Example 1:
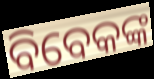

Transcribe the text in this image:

ବିବେକଙ୍କ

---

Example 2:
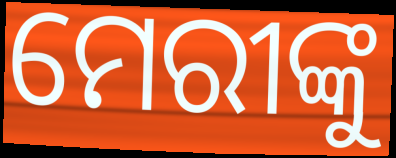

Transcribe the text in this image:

ମେରୀଙ୍କୁ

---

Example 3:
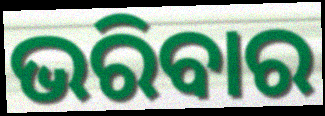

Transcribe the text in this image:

ଭରିବାର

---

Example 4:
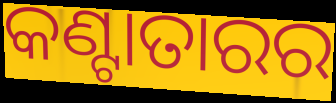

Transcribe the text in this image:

କଣ୍ଟାତାରର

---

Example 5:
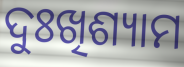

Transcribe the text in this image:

ଦୁଃଖିଶ୍ୟାମ